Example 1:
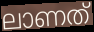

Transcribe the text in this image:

ലാണത്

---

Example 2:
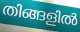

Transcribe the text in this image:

തിങ്ങളിൽ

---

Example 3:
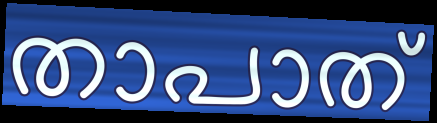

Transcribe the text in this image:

താപാത്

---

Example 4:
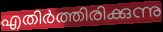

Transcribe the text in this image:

എതിർത്തിരിക്കുന്നു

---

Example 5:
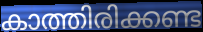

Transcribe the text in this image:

കാത്തിരിക്കണ്ട